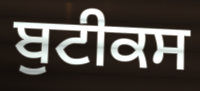
ਬੁਟੀਕਸ